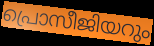
പ്രൊസീജിയറും